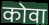
कोवा